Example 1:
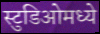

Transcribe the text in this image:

स्टुडिओमध्ये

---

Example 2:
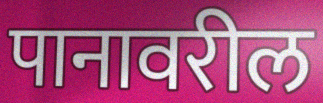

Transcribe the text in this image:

पानावरील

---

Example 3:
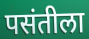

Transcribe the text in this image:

पसंतीला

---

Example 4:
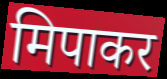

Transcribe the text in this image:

मिपाकर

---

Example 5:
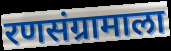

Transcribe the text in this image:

रणसंग्रामाला